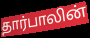
தார்பாலின்